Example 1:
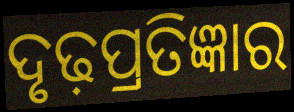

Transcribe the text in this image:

ଦୃଢ଼ପ୍ରତିଜ୍ଞାର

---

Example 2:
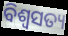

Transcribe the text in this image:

ବିଶ୍ୱସତ୍ୟ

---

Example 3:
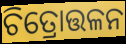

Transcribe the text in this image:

ଚିତ୍ରୋତ୍ତଳନ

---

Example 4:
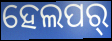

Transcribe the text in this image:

ହେଲପର୍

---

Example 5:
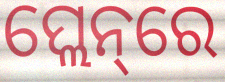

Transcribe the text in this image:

ପ୍ଲେନ୍‌ରେ